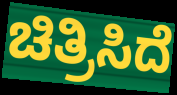
ಚಿತ್ರಿಸಿದೆ